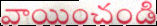
వాయించండి